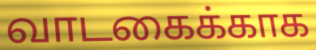
வாடகைக்காக